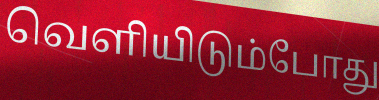
வெளியிடும்போது